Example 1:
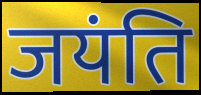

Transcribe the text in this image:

जयंति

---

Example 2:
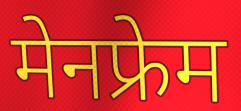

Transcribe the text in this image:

मेनफ्रेम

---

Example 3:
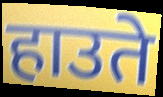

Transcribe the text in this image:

हाउते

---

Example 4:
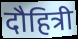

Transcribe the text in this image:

दौहित्री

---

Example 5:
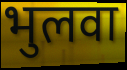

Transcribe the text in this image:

भुलवा